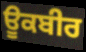
ਊਕਬੀਰ